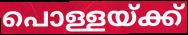
പൊള്ളയ്ക്ക്